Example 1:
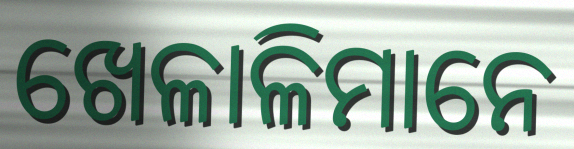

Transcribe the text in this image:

ଖେଳାଳିମାନେ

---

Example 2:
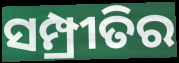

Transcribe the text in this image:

ସମ୍ପ୍ରୀତିର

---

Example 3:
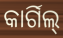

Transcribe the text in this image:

କାର୍ଗିଲ୍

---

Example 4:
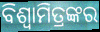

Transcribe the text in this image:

ବିଶ୍ୱାମିତ୍ରଙ୍କର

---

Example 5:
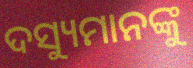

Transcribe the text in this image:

ଦସ୍ୟୁମାନଙ୍କୁ